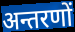
अन्तरणों